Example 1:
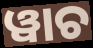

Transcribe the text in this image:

ୱାଚ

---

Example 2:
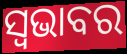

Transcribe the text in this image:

ସ୍ଵଭାବର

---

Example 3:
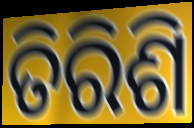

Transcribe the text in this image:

ତିରିଶି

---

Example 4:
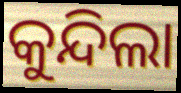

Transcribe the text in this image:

କୁନ୍ଦିଲା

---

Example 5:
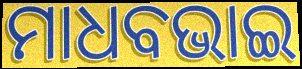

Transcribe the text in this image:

ମାଧବଭାଇ